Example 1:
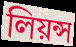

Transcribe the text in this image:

লিয়ন্স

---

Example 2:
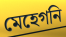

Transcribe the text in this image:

মেহেগনি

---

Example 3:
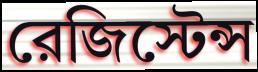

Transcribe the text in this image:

রেজিস্টেন্স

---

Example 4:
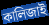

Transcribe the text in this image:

কালিজাই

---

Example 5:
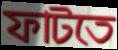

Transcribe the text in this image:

ফাটতে